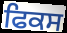
ਫਿਕਸ